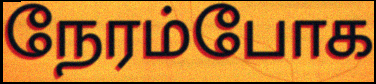
நேரம்போக